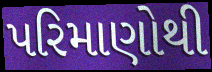
પરિમાણોથી